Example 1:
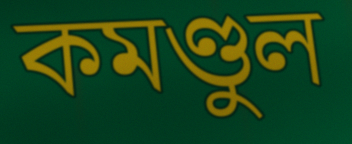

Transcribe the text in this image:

কমণ্ডুল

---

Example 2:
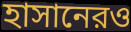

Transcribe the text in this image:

হাসানেরও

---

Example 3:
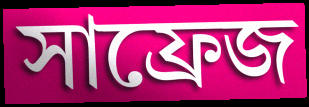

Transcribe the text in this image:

সাফ্রেজ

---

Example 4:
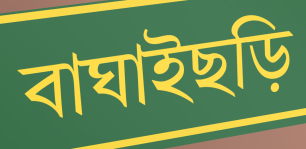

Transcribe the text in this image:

বাঘাইছড়ি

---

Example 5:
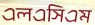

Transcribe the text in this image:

এলএসিএম